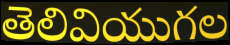
తెలివియుగల